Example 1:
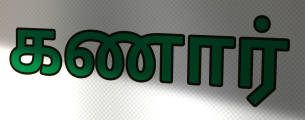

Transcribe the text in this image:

கணார்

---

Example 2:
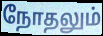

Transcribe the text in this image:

நோதலும்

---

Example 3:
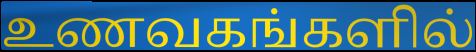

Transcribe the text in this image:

உணவகங்களில்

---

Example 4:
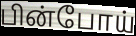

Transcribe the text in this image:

பின்போய்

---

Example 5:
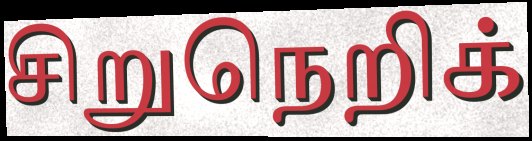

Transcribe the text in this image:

சிறுநெறிக்